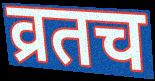
व्रतच